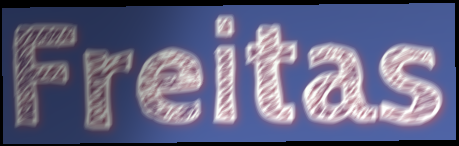
Freitas